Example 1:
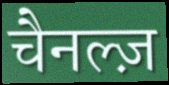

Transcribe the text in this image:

चैनल्ज़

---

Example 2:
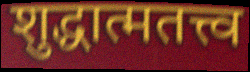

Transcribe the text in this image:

शुद्धात्मतत्त्व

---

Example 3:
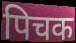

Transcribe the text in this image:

पिचक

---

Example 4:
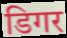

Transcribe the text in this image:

डिगर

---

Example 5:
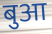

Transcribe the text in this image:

बुआ